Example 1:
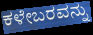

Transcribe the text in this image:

ಕಳೇಬರವನ್ನು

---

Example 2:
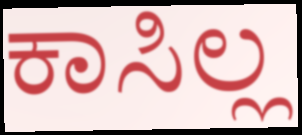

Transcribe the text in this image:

ಕಾಸಿಲ್ಲ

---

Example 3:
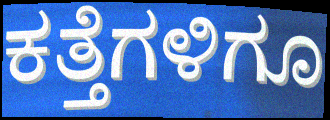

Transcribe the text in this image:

ಕತ್ತೆಗಳಿಗೂ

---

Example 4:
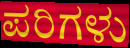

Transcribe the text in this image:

ಪರಿಗಳು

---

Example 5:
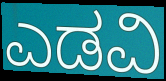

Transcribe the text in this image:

ಎಡವಿ